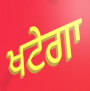
ਖਟੇਗਾ